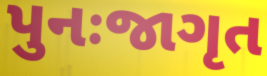
પુનઃજાગૃત